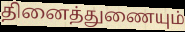
தினைத்துணையும்